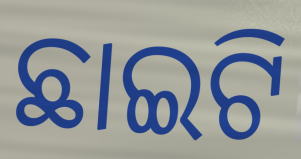
ଛାଇଟି